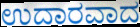
ಉದಾರವಾದ